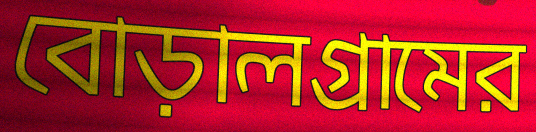
বোড়ালগ্রামের